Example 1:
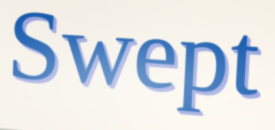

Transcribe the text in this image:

Swept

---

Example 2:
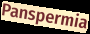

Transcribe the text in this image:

Panspermia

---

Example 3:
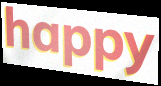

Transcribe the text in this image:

happy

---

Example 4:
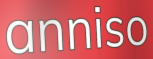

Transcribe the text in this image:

anniso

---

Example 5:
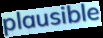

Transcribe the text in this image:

plausible